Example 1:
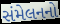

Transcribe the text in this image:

સંમેલનનો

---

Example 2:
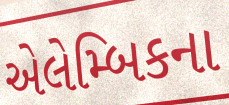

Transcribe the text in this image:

એલેમ્બિકના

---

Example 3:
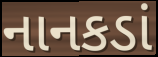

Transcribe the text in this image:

નાનકડાં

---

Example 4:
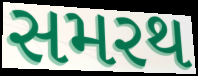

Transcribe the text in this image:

સમરથ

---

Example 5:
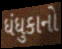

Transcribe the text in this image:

ધંધુકાનો